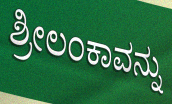
ಶ್ರೀಲಂಕಾವನ್ನು